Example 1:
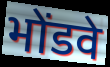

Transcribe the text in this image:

भोंडवे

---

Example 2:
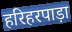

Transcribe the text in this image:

हरिहरपाड़ा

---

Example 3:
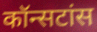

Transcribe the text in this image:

कॉन्सटांस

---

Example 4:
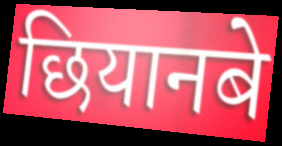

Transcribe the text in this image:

छियानबे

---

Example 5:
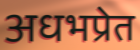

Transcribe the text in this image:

अधभप्रेत